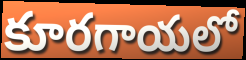
కూరగాయలో